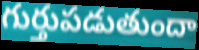
గుర్తుపడుతుందా